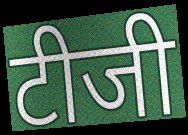
टीजी